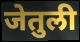
जेतुली